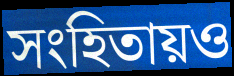
সংহিতায়ও